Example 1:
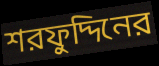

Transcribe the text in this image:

শরফুদ্দিনের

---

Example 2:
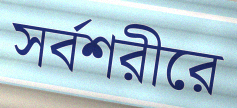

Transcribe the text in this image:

সর্বশরীরে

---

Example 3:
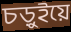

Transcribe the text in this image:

চড়ুইয়ে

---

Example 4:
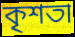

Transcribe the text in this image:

কৃশতা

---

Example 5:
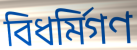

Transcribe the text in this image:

বিধর্মিগণ